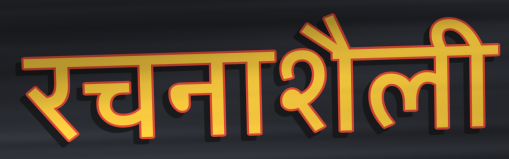
रचनाशैली